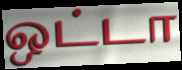
ஒட்டா